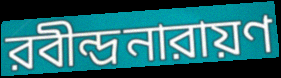
রবীন্দ্রনারায়ণ